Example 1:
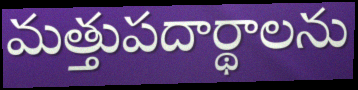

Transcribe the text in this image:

మత్తుపదార్థాలను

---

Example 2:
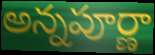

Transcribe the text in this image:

అన్నపూర్ణా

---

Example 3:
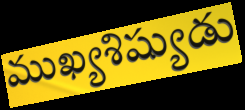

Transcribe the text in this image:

ముఖ్యశిష్యుడు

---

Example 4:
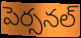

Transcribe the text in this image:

పెర్సనల్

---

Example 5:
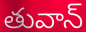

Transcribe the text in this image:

తువాన్